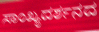
ಸಾಂಖ್ಯದರ್ಶನದ